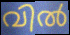
വിൽ